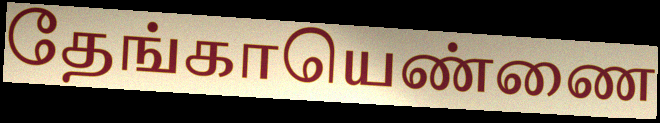
தேங்காயெண்ணை